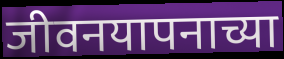
जीवनयापनाच्या